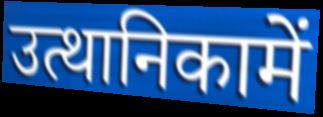
उत्थानिकामें